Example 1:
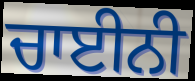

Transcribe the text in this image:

ਚਾਈਨੀ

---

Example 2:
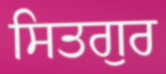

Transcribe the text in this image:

ਸਿਤਗੁਰ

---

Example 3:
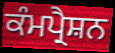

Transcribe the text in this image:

ਕੰਮਪ੍ਰੈਸ਼ਨ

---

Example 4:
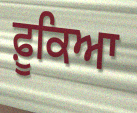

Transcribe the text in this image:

ਫ਼ੂਕਿਆ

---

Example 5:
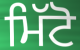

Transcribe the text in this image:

ਮਿੱਟੋ